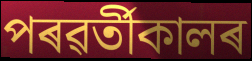
পৰৱৰ্তীকালৰ